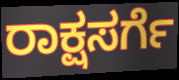
ರಾಕ್ಷಸರ್ಗೆ